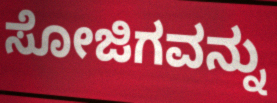
ಸೋಜಿಗವನ್ನು